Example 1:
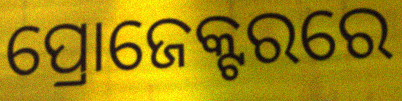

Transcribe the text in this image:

ପ୍ରୋଜେକ୍ଟରରେ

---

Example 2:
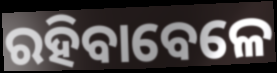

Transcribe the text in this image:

ରହିବାବେଳେ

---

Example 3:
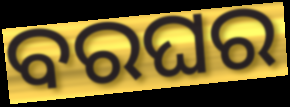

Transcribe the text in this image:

ବରଘର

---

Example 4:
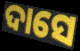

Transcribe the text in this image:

ଦାସେ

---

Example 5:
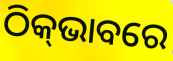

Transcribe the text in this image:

ଠିକ୍‌ଭାବରେ